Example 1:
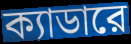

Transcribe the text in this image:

ক্যাডারে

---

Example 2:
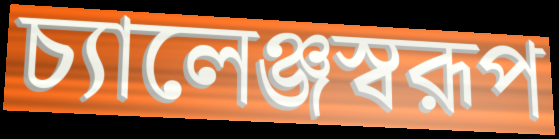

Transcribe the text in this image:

চ্যালেঞ্জস্বরূপ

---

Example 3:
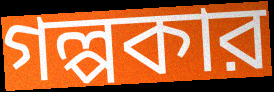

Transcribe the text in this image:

গল্পকার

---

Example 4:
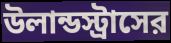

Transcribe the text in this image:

উলান্ডস্ট্রাসের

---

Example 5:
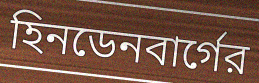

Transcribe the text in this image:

হিনডেনবার্গের